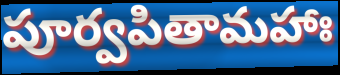
పూర్వపితామహాః